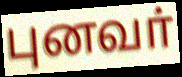
புனவர்